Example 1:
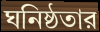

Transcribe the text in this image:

ঘনিষ্ঠতার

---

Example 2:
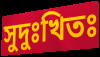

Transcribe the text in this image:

সুদুঃখিতঃ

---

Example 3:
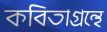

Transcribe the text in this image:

কবিতাগ্রন্থে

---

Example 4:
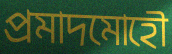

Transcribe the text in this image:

প্রমাদমোহৌ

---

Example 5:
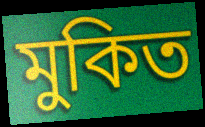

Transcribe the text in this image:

মুকিত